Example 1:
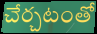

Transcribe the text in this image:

చేర్చటంతో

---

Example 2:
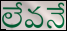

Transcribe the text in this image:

లేవనే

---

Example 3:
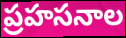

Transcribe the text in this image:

ప్రహసనాల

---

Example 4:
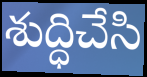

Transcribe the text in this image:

శుద్ధిచేసి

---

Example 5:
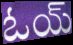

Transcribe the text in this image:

ఓయ్